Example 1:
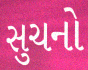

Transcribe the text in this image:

સુચનો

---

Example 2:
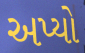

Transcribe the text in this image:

અપ્યો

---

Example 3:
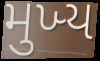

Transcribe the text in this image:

મુખ્‍ય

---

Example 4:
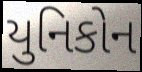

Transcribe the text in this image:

યુનિકોન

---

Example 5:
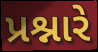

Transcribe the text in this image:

પ્રશ્નારે